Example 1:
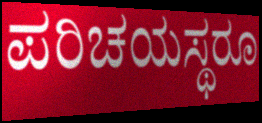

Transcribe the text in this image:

ಪರಿಚಯಸ್ಥರೂ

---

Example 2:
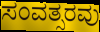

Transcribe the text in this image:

ಸಂವತ್ಸರವು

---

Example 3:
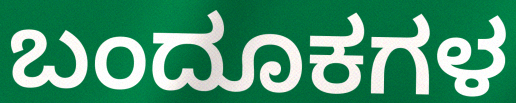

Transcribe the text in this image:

ಬಂದೂಕಗಳ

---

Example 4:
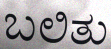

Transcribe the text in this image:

ಬಲಿತು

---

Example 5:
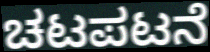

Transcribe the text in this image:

ಚಟಪಟನೆ